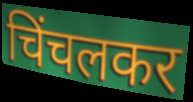
चिंचलकर